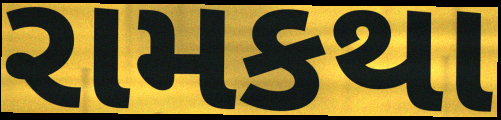
રામકથા